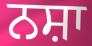
ਨਸ਼ਾ